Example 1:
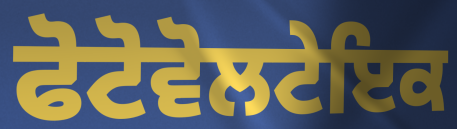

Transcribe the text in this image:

ਫੋਟੋਵੋਲਟੇਇਕ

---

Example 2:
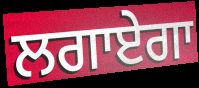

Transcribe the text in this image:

ਲਗਾਏਗਾ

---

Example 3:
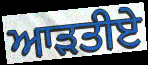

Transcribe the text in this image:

ਆੜਤੀਏ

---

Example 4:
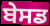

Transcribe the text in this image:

ਬੇਸਡ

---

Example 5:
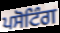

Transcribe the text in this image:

ਪਸੋਟਿੰਗ